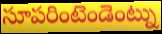
సూపరింటెండెంట్ను